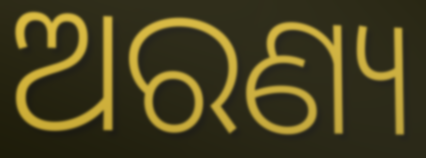
ଅରଣ୍ୟ